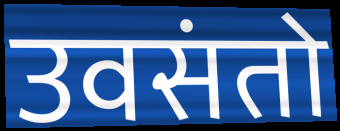
उवसंतो